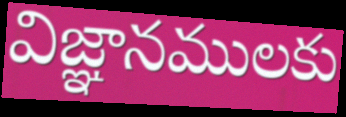
విజ్ఞానములకు